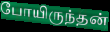
போயிருந்தன்